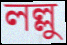
লল্লু